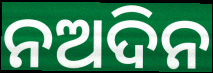
ନଅଦିନ